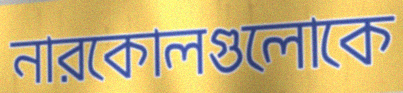
নারকোলগুলোকে